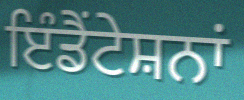
ਇੰਡੈਂਟੇਸ਼ਨਾਂ